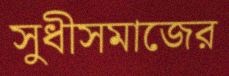
সুধীসমাজের